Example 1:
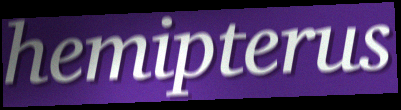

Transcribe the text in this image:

hemipterus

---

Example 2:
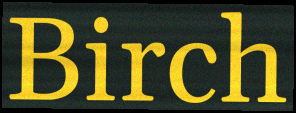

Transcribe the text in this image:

Birch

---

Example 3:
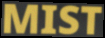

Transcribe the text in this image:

MIST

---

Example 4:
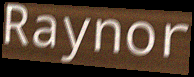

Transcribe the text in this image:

Raynor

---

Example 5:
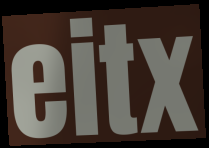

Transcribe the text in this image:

eitx